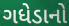
ગધેડાનો